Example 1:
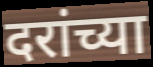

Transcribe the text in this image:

दरांच्या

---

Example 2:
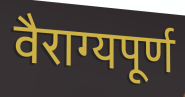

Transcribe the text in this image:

वैराग्यपूर्ण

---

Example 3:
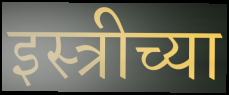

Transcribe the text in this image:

इस्त्रीच्या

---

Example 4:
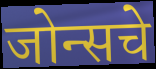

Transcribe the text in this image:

जोन्सचे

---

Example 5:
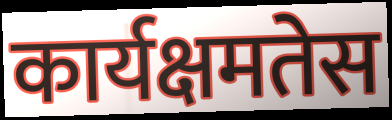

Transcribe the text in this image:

कार्यक्षमतेस